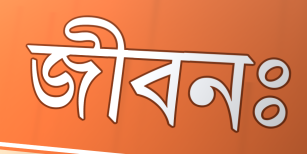
জীবনঃ